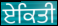
ਏਕਿਤੀ